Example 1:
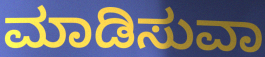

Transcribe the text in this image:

ಮಾಡಿಸುವಾ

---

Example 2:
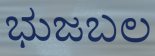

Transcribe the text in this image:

ಭುಜಬಲ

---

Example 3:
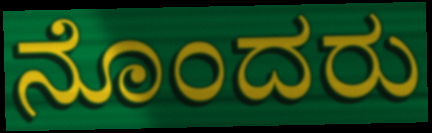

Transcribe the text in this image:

ನೊಂದರು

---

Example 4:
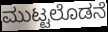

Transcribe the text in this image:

ಮುಟ್ಟಲೊಡನೆ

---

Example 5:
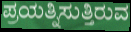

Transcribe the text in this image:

ಪ್ರಯತ್ನಿಸುತ್ತಿರುವ